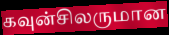
கவுன்சிலருமான